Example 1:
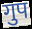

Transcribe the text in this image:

गुप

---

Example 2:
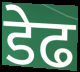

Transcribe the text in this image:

डेढ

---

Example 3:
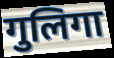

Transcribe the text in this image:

गुलिगा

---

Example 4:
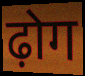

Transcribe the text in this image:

ढ़ोग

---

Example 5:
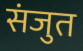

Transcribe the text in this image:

संजुत